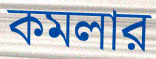
কমলার